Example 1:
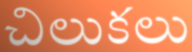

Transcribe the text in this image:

చిలుకలు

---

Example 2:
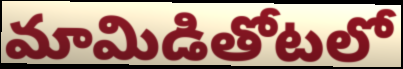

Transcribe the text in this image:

మామిడితోటలో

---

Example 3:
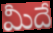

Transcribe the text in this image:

మీదే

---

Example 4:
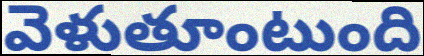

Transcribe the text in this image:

వెళుతూంటుంది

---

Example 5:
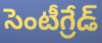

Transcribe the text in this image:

సెంటీగ్రేడ్